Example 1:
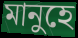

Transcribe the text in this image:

মানুহে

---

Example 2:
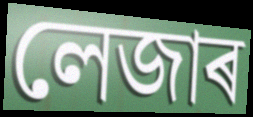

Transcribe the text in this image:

লেজাৰ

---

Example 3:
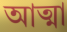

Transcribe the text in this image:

আত্মা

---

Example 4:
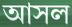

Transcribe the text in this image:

আসল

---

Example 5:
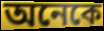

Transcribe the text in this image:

অনেকে